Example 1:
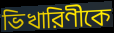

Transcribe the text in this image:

ভিখারিণীকে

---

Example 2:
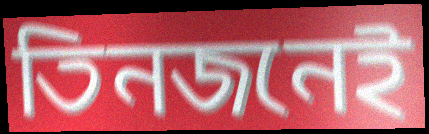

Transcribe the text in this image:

তিনজনেই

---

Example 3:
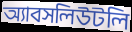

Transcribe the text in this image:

অ্যাবসলিউটলি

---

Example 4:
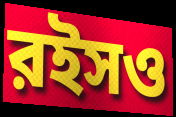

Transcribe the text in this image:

রইসও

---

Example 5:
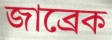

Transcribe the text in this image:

জাব্রেক